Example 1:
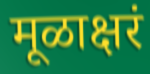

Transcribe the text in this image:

मूळाक्षरं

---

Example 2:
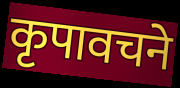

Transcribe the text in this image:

कृपावचने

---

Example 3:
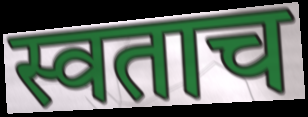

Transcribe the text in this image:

स्वताच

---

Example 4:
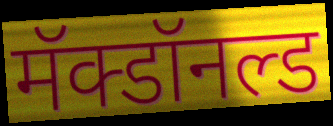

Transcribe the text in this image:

मॅक्डॉनल्ड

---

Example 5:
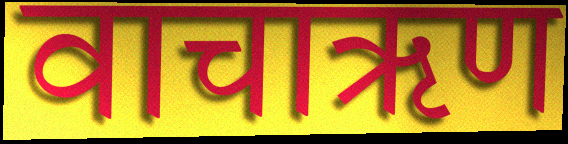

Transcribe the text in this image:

वाचाऋण